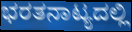
ಭರತನಾಟ್ಯದಲ್ಲಿ